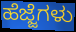
ಹೆಜ್ಜೆಗಳು